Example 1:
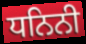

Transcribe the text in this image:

ਧਨਿਨੀ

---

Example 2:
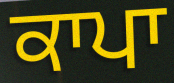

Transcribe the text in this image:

ਕਾਪਾ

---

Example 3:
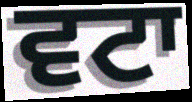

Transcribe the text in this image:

ਵਟਾ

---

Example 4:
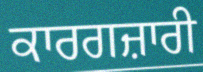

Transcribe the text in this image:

ਕਾਰਗਜ਼ਾਰੀ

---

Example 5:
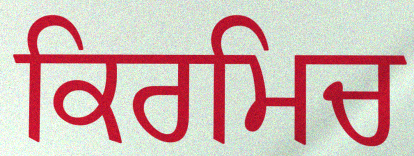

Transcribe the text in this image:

ਕਿਰਮਿਚ